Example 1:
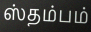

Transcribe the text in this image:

ஸ்தம்பம்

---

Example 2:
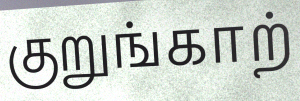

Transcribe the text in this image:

குறுங்காற்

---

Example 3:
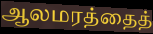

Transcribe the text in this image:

ஆலமரத்தைத்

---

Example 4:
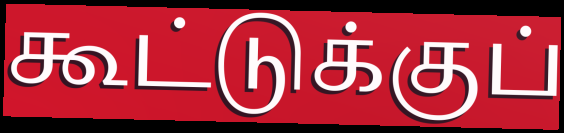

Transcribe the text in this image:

கூட்டுக்குப்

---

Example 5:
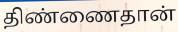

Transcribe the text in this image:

திண்ணைதான்